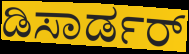
ಡಿಸಾರ್ಡರ್